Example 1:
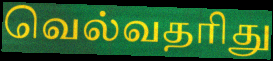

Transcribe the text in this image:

வெல்வதரிது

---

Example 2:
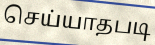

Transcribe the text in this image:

செய்யாதபடி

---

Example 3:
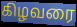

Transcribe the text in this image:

கிழவரை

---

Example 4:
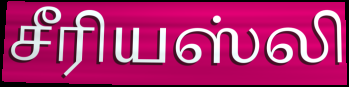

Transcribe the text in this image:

சீரியஸ்லி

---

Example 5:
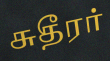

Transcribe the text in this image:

சுதீரர்